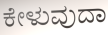
ಕೇಳುವುದಾ